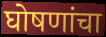
घोषणांचा